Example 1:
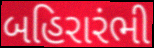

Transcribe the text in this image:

બહિરારંભી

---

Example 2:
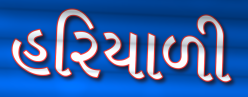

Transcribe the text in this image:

હરિયાળી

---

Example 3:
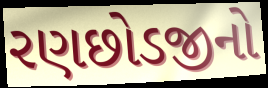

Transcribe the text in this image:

રણછોડજીનો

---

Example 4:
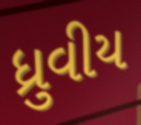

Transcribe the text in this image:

ધ્રુવીય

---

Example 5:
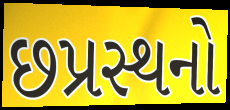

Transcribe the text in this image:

છપ્રસ્થનો